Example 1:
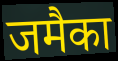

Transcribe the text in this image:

जमैका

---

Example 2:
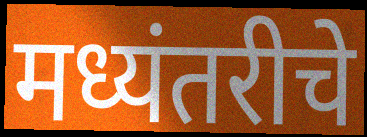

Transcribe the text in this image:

मध्यंतरीचे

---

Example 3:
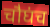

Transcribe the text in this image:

चौघंच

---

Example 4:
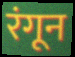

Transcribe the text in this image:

रंगून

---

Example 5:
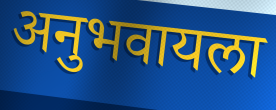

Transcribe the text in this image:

अनुभवायला